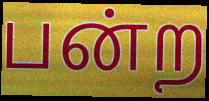
பன்ற